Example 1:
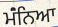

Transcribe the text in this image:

ਮੰਂਨਿਆ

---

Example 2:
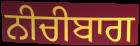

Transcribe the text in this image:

ਨੀਚੀਬਾਗ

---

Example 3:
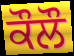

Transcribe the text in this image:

ਕੌਲੌ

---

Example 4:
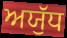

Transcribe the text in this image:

ਅਯੁੱਧ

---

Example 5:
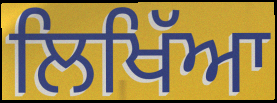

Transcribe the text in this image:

ਲਿਖਿੱਆ